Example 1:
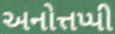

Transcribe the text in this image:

અનોત્તપ્પી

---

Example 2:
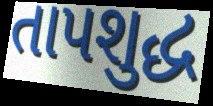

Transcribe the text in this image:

તાપશુદ્ધ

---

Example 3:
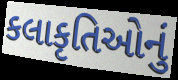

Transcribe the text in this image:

કલાકૃતિઓનું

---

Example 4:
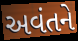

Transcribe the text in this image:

અવંતને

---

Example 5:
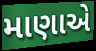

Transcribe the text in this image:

માણાએ